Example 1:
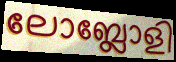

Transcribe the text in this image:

ലോബ്ലോളി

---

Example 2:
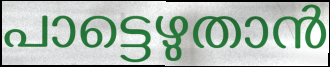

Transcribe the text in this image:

പാട്ടെഴുതാൻ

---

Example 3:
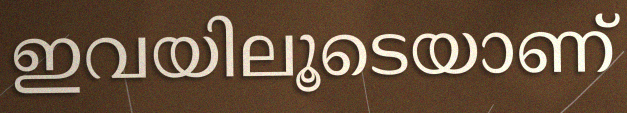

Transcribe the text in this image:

ഇവയിലൂടെയാണ്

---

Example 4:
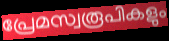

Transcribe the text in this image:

പ്രേമസ്വരൂപികളും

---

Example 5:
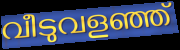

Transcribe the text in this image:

വീടുവളഞ്ഞ്